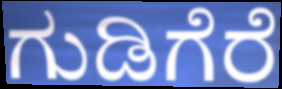
ಗುಡಿಗೆರೆ